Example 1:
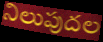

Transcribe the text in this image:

నిలుపుదల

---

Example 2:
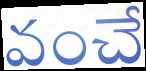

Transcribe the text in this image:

వంచే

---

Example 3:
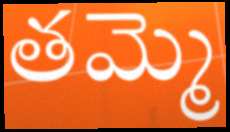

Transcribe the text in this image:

తమ్మె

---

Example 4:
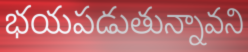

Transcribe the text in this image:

భయపడుతున్నావని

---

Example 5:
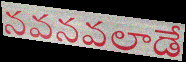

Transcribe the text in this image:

నవనవలాడే